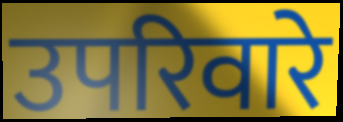
उपरिवारे